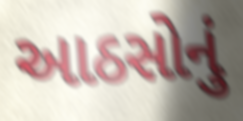
આઠસોનું